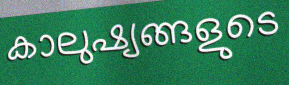
കാലുഷ്യങ്ങളുടെ